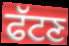
ਫੱਟਣ